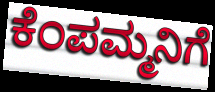
ಕೆಂಪಮ್ಮನಿಗೆ